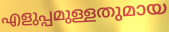
എളുപ്പമുള്ളതുമായ